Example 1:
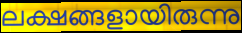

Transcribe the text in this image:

ലക്ഷങ്ങളായിരുന്നു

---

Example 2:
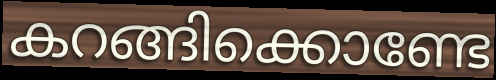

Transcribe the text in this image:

കറങ്ങിക്കൊണ്ടേ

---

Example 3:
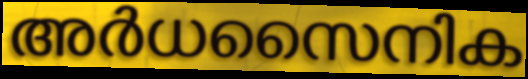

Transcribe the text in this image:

അർധസൈനിക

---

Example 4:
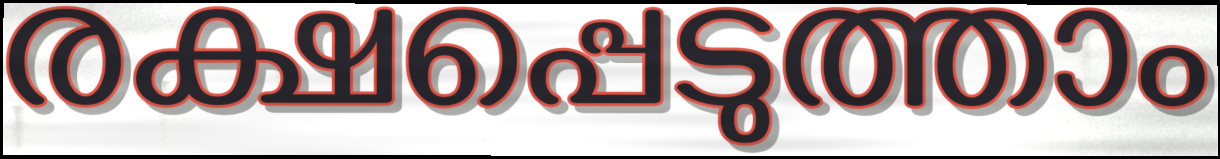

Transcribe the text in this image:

രക്ഷപ്പെടുത്താം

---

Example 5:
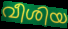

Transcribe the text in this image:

വീശിയ